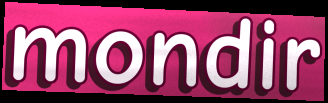
mondir